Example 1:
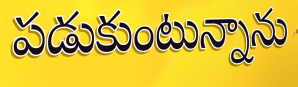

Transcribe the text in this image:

పడుకుంటున్నాను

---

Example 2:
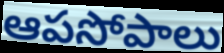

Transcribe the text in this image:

ఆపసోపాలు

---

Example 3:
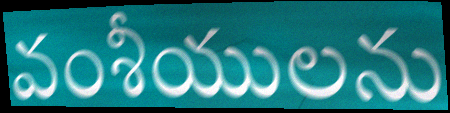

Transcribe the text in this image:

వంశీయులను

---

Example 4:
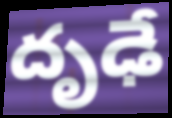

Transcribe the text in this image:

దృఢే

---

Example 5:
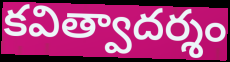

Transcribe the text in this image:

కవిత్వాదర్శం